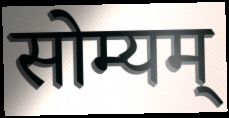
सोम्यम्